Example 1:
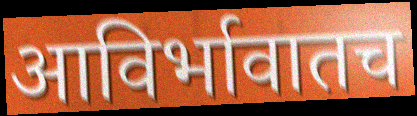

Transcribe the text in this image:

आविर्भावातच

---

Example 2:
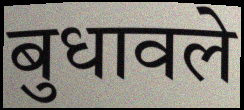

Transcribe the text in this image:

बुधावले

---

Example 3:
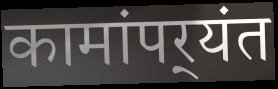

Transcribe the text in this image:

कामांपर्यंत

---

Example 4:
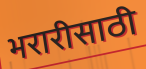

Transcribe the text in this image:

भरारीसाठी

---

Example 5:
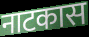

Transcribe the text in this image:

नाटकास